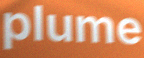
plume